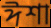
ঈশা